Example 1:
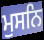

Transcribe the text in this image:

ਮੁਸਨਿ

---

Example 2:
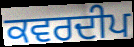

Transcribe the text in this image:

ਕਵਰਦੀਪ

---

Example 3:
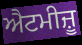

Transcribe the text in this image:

ਐਟਮੀਜ਼ੂ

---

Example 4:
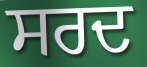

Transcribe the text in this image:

ਸਰਦ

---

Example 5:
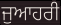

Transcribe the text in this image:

ਜੁਆਹਰੀ